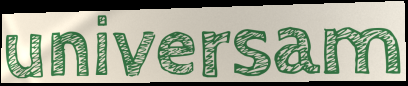
universam